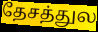
தேசத்துல